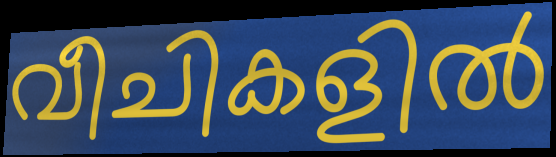
വീചികളിൽ